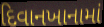
દિવાનખાનામાં